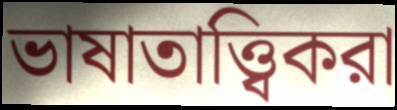
ভাষাতাত্ত্বিকরা